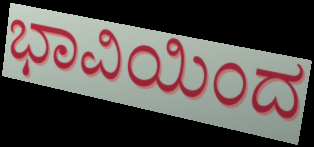
ಭಾವಿಯಿಂದ